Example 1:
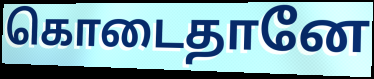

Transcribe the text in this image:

கொடைதானே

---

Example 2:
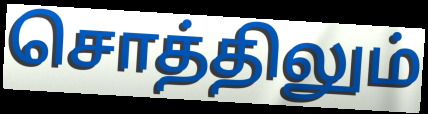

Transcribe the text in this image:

சொத்திலும்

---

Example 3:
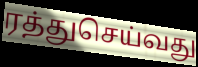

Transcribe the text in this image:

ரத்துசெய்வது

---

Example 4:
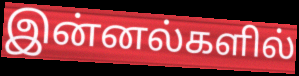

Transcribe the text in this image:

இன்னல்களில்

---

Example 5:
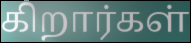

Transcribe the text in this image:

கிறார்கள்